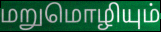
மறுமொழியும்